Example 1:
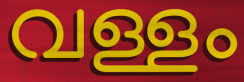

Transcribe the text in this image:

വള്ളം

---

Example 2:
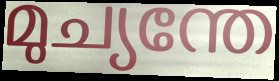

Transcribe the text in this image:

മുച്യന്തേ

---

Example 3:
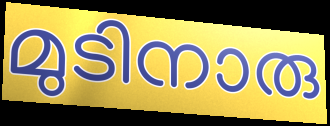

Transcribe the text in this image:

മുടിനാരു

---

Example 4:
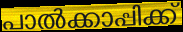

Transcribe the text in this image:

പാൽക്കാപ്പിക്ക്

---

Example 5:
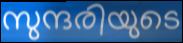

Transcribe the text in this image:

സുന്ദരിയുടെ